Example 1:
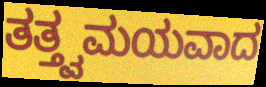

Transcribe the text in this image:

ತತ್ತ್ವಮಯವಾದ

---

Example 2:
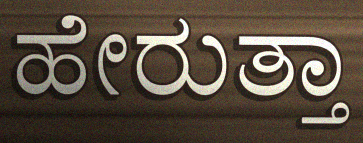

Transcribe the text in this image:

ಹೇರುತ್ತಾ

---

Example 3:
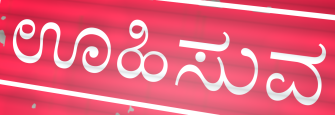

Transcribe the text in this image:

ಊಹಿಸುವ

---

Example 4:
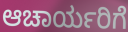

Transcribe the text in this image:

ಆಚಾರ್ಯರಿಗೆ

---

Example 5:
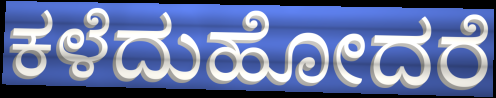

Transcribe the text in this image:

ಕಳೆದುಹೋದರೆ